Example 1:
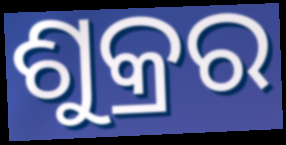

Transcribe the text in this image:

ଶୁକ୍ରର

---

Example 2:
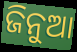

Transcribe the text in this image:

ଜିନୁଆ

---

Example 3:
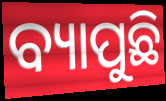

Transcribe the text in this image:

ବ୍ୟାପୁଛି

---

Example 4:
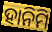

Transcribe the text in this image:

ହାନିମି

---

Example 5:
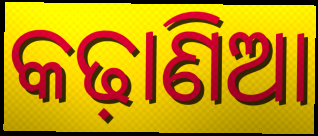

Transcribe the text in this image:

କଢ଼ାଣିଆ